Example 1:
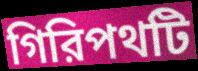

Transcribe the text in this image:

গিরিপথটি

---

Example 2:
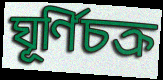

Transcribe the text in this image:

ঘূর্ণিচক্র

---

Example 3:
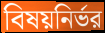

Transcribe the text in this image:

বিষয়নির্ভর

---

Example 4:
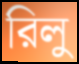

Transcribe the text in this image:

রিলু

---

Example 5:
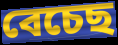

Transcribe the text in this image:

বেচেছ